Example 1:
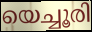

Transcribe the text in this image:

യെച്ചൂരി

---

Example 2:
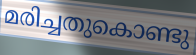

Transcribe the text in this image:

മരിച്ചതുകൊണ്ടു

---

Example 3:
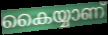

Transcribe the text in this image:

കൈയ്യാണ്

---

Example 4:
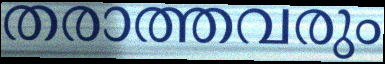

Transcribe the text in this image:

തരാത്തവരും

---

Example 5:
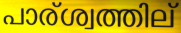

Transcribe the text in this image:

പാര്ശ്വത്തില്